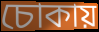
চোকায়